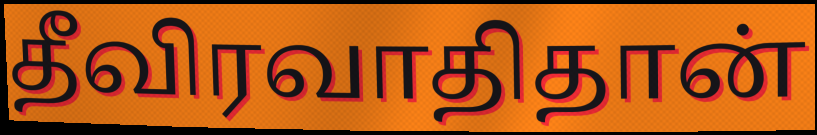
தீவிரவாதிதான்